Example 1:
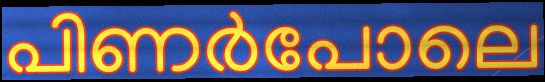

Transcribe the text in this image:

പിണർപോലെ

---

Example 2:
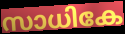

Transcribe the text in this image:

സാധികേ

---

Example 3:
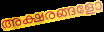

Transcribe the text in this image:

അക്ഷരങ്ങളോ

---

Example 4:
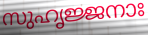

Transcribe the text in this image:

സുഹൃജ്ജനാഃ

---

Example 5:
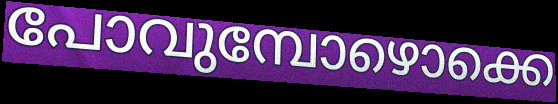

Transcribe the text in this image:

പോവുമ്പോഴൊക്കെ